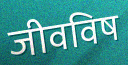
जीवविष